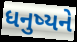
ધનુષ્યને